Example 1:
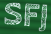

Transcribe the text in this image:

SFJ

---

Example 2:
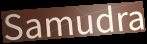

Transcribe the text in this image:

Samudra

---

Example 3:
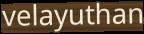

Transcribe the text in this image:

velayuthan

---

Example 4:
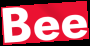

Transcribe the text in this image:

Bee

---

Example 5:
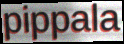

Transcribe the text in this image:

pippala